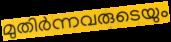
മുതിർന്നവരുടെയും